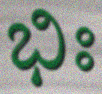
ಭಿಃ